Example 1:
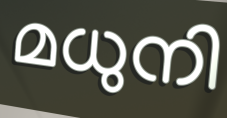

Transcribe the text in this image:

മധുനി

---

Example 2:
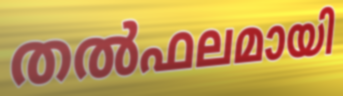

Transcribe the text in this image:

തൽഫലമായി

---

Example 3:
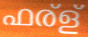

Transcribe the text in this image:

ഫര്ള്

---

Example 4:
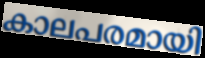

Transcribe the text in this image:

കാലപരമായി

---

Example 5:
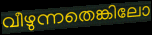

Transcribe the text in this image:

വീഴുന്നതെങ്കിലോ